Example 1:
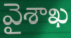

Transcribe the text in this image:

వైశాఖ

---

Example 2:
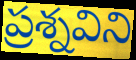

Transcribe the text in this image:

ప్రశ్నవిని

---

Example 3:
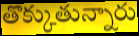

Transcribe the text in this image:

తొక్కుతున్నారు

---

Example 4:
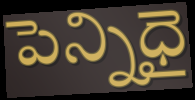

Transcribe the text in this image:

పెన్నిధై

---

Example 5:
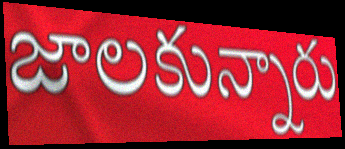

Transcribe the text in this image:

జాలకున్నారు